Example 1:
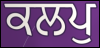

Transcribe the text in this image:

ਕਲਪੁ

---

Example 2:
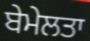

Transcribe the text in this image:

ਬੇਮੇਲਤਾ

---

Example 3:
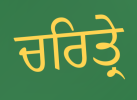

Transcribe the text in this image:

ਚਰਿਤ੍ਰੇ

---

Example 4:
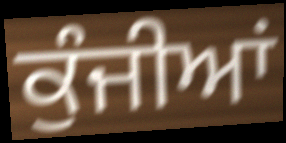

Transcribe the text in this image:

ਕੁੰਜੀਆਂ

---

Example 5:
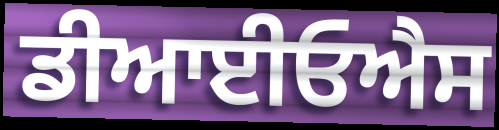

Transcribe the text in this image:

ਡੀਆਈਓਐਸ